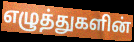
எழுத்துகளின்